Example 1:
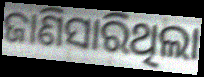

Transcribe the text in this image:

ଜାଣିସାରିଥିଲା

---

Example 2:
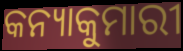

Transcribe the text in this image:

କନ୍ୟାକୁମାରୀ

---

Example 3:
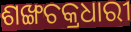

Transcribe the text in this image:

ଶଙ୍ଖଚକ୍ରଧାରୀ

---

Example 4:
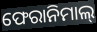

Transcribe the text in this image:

ଫେରାନିମାଲ୍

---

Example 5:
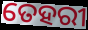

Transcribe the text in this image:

ତେହରୀ